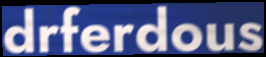
drferdous